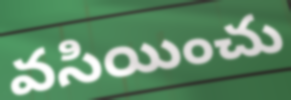
వసియించు